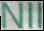
NII